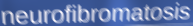
neurofibromatosis